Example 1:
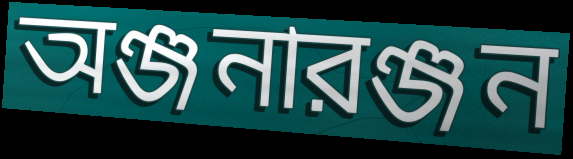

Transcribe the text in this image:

অঞ্জনারঞ্জন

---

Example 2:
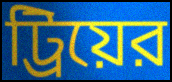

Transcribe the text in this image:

ট্রিয়ের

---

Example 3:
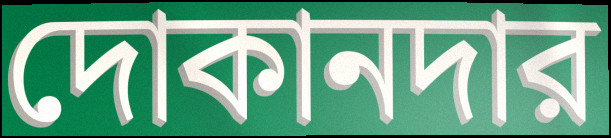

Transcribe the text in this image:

দোকানদার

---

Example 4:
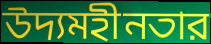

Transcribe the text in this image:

উদ্যমহীনতার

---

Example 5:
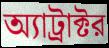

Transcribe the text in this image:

অ্যাট্রাক্টর